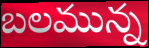
బలమున్న